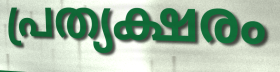
പ്രത്യക്ഷരം